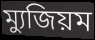
ম্যুজিয়ম